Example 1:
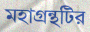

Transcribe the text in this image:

মহাগ্রন্থটির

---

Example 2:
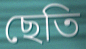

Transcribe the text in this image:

ছেতি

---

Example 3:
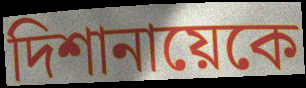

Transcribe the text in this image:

দিশানায়েকে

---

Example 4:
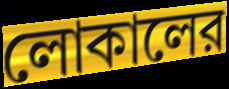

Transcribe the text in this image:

লোকালের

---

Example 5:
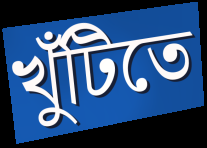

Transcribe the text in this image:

খুঁটিতে